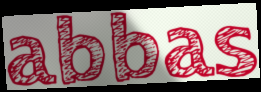
abbas